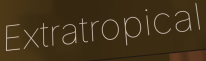
Extratropical